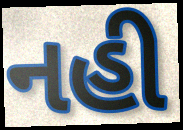
નહી